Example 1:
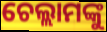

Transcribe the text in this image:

ଚେଲ୍ଲାମଙ୍କୁ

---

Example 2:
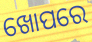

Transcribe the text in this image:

ଖୋପରେ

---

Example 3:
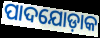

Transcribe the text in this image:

ପାଦଯୋଡ଼ାକ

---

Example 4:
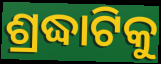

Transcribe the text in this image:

ଶ୍ରଦ୍ଧାଟିକୁ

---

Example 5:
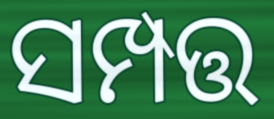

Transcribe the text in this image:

ସମ୍ପତ୍ତ